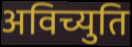
अविच्युति